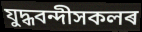
যুদ্ধবন্দীসকলৰ